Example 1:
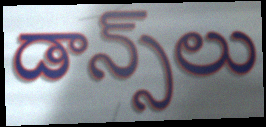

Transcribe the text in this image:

డాన్స్‌లు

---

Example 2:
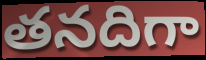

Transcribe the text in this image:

తనదిగా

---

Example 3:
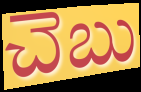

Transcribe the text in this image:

చెబు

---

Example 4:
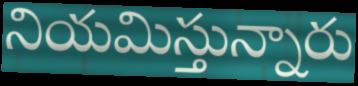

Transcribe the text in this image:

నియమిస్తున్నారు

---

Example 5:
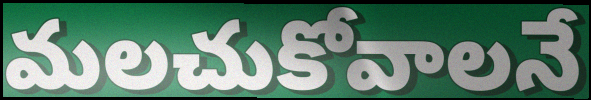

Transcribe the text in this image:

మలచుకోవాలనే